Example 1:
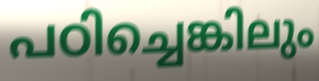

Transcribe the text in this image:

പഠിച്ചെങ്കിലും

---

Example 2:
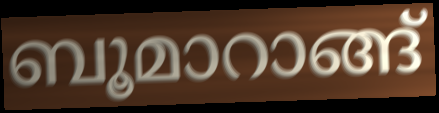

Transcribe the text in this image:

ബൂമാറാങ്ങ്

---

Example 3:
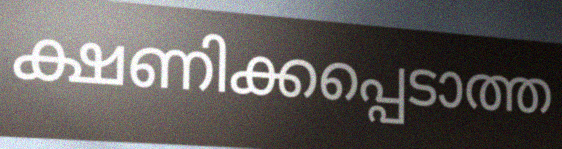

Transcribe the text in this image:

ക്ഷണിക്കപ്പെടാത്ത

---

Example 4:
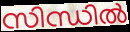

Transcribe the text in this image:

സിന്ധിൽ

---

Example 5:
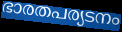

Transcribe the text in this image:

ഭാരതപര്യടനം